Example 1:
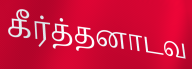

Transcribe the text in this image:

கீர்த்தனாடவ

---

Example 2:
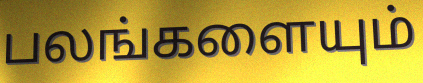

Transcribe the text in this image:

பலங்களையும்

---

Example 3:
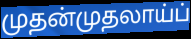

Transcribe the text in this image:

முதன்முதலாய்ப்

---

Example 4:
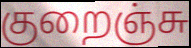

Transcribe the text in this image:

குறைஞ்சு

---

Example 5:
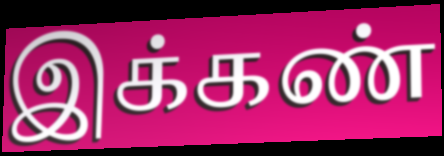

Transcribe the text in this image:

இக்கண்